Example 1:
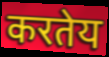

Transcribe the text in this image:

करतेय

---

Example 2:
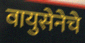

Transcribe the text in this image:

वायुसेनेचे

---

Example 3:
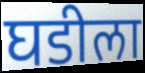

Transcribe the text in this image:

घडीला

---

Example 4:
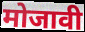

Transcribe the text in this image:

मोजावी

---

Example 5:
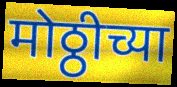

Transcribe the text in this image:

मोठ्ठीच्या